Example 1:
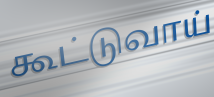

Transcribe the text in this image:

கூட்டுவாய்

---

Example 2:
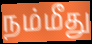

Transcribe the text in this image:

நம்மீது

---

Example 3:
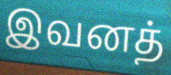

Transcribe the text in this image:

இவனத்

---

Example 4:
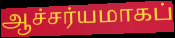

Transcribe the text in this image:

ஆச்சர்யமாகப்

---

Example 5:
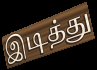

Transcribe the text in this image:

இடித்து